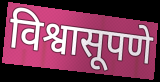
विश्वासूपणे